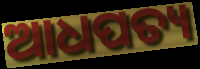
ଆଧପତ୍ୟ